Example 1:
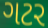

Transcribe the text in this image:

ગટર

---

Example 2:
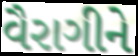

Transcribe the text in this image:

વૈરાગીને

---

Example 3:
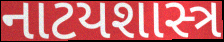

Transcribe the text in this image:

નાટયશાસ્ત્ર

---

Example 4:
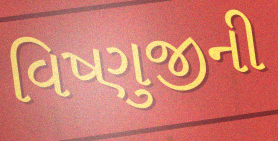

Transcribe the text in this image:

વિષ્ણુજીની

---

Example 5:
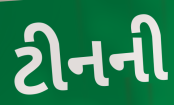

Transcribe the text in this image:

ટીનની